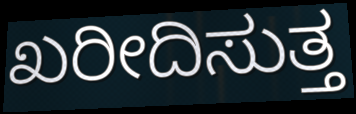
ಖರೀದಿಸುತ್ತ